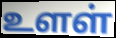
உளள்